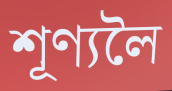
শূণ্যলৈ